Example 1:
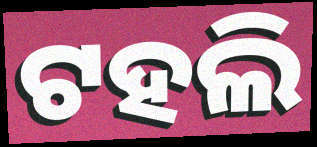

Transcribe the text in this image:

ଟହଲି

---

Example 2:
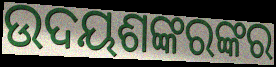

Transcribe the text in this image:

ଉଦୟଶଙ୍କରଙ୍କର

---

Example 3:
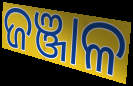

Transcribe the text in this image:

ଜଞ୍ଜାଳ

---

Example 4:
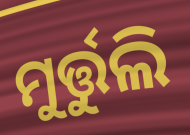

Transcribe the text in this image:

ମୁର୍ତ୍ତୁଲି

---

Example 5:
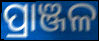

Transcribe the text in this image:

ପ୍ରାଞ୍ଜଳ